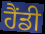
ਹੈਂਡੀ